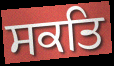
ਸਕਤਿ